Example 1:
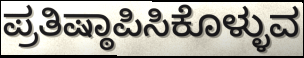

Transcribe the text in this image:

ಪ್ರತಿಷ್ಠಾಪಿಸಿಕೊಳ್ಳುವ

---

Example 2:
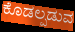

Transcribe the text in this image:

ಕೊಡಲ್ಪಡುವ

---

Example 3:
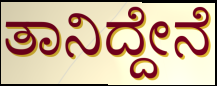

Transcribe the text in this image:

ತಾನಿದ್ದೇನೆ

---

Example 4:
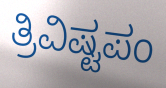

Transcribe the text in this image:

ತ್ರಿವಿಷ್ಟಪಂ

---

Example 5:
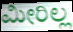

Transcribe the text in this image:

ಮೀರಿಲ್ಲ